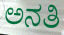
ಅನತಿ